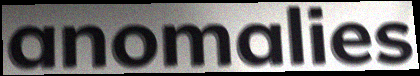
anomalies